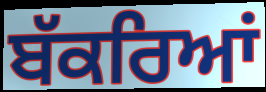
ਬੱਕਰਿਆਂ